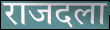
राजदला